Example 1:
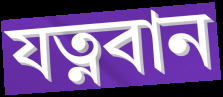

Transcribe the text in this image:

যত্নবান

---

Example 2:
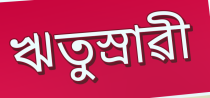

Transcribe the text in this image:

ঋতুস্ৰাৱী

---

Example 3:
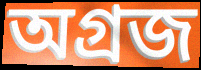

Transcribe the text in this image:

অগ্ৰজ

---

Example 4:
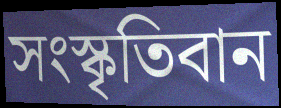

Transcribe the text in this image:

সংস্কৃতিবান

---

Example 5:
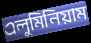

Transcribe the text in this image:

এলুমিনিয়াম